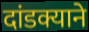
दांडक्याने